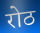
रोठ